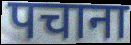
पचाना